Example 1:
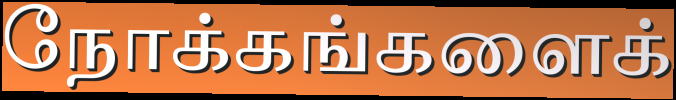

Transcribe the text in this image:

நோக்கங்களைக்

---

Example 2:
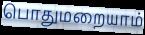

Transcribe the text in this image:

பொதுமறையாம்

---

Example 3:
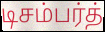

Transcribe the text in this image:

டிசம்பர்த்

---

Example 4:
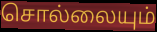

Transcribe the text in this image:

சொல்லையும்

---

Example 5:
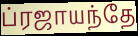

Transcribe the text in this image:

ப்ரஜாயந்தே